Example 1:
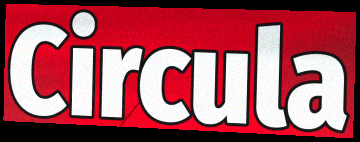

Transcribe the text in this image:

Circula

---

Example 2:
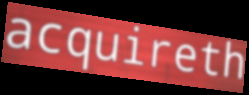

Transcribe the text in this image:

acquireth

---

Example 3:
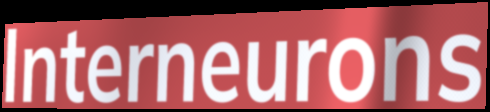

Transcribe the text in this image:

Interneurons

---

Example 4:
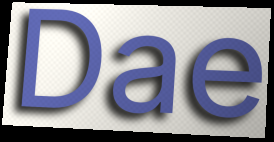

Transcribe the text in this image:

Dae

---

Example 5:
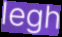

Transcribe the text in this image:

legh